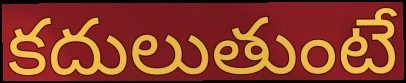
కదులుతుంటే